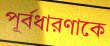
পূর্বধারণাকে